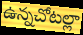
ఉన్నచోటల్లా